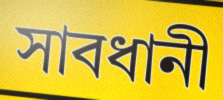
সাবধানী